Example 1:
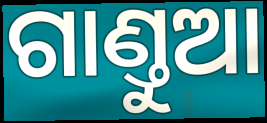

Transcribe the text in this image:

ଗାଣ୍ତୁଆ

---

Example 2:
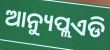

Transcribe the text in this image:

ଆନ୍ୟୁପ୍ଲଏଡି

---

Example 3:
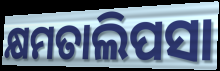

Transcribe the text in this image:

କ୍ଷମତାଲିପସା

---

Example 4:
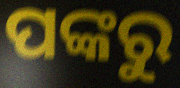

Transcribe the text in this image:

ପଙ୍କରୁ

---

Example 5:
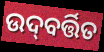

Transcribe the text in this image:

ଉଦ୍‌ବର୍ତ୍ତିତ